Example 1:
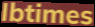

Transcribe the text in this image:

Ibtimes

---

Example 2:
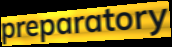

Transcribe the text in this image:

preparatory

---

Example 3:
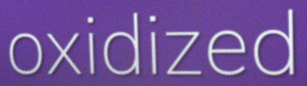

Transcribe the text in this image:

oxidized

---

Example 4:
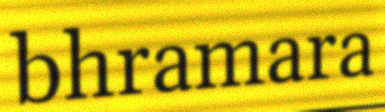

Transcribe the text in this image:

bhramara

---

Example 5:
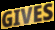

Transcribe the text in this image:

GIVES